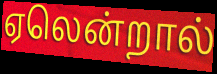
ஏலென்றால்